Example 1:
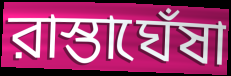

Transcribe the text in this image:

রাস্তাঘেঁষা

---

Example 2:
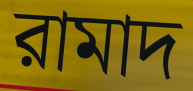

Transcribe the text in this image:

রামাদ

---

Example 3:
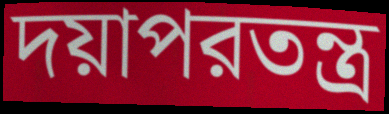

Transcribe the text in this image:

দয়াপরতন্ত্র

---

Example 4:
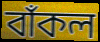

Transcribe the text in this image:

বাঁকল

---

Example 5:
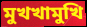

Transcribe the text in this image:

মুখখামুখি